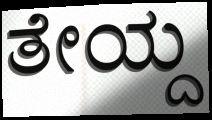
ತೇಯ್ದ